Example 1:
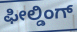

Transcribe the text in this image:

ಫೀಲ್ಡಿಂಗ್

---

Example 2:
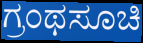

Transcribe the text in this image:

ಗ್ರಂಥಸೂಚಿ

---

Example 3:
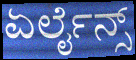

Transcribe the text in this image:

ಏರ್ಲೈನ್ಸ್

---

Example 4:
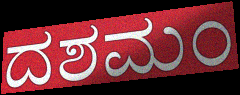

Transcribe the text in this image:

ದಶಮಂ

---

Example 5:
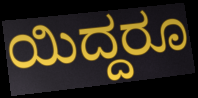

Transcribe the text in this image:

ಯಿದ್ದರೂ